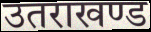
उतराखण्ड